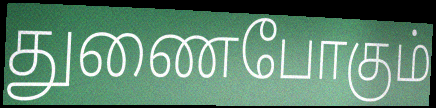
துணைபோகும்